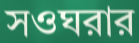
সওঘরার